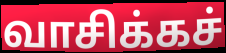
வாசிக்கச்